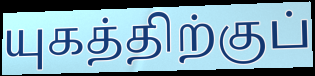
யுகத்திற்குப்